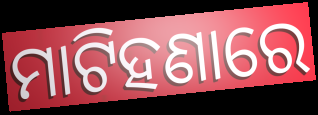
ମାଟିହଣାରେ